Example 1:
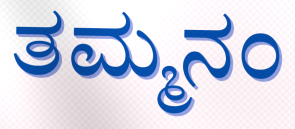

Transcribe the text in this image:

ತಮ್ಮನಂ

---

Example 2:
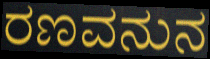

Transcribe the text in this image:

ರಣವನುನ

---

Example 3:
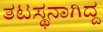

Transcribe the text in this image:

ತಟಸ್ಥನಾಗಿದ್ದ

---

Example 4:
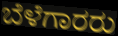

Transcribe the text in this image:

ಬೆಳೆಗಾರರು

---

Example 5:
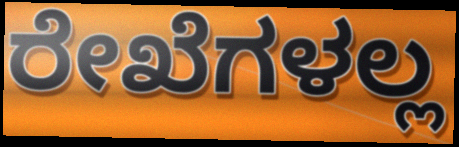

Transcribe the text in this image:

ರೇಖೆಗಳಲ್ಲ